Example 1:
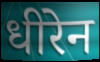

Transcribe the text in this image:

धीरेन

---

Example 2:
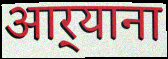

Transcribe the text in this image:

आर्याना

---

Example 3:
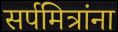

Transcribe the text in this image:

सर्पमित्रांना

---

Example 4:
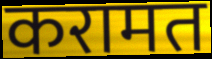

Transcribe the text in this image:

करामत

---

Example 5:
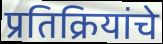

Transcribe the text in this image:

प्रतिक्रियांचे